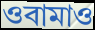
ওবামাও